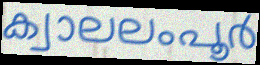
ക്വാലലംപൂർ